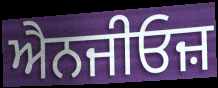
ਐਨਜੀਓਜ਼